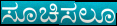
ಸೂಚಿಸಲೂ